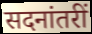
सदनांतरीं